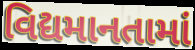
વિદ્યમાનતામાં